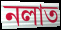
নলাত